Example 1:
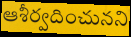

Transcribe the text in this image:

ఆశీర్వదించునని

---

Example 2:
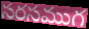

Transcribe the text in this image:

సరసముగ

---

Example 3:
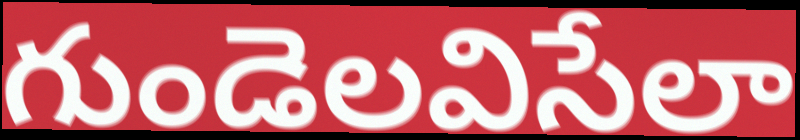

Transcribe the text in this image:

గుండెలవిసేలా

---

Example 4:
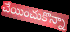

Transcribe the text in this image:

చేయించుకొన్నా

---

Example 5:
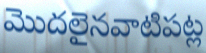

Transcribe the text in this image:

మొదలైనవాటిపట్ల